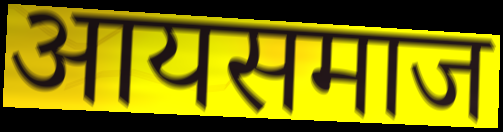
आयसमाज